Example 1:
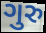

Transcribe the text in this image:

ગુરુ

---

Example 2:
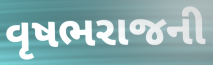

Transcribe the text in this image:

વૃષભરાજની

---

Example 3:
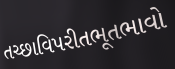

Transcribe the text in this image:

તચ્છાવિપરીતભૂતભાવો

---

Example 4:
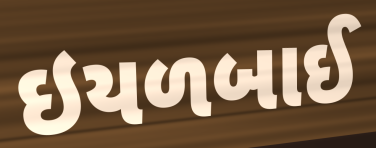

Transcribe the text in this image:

ઇયળબાઈ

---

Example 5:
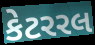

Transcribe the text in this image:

કેટરરલ